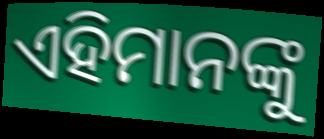
ଏହିମାନଙ୍କୁ